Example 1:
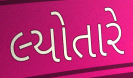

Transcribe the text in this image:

લ્યોતારે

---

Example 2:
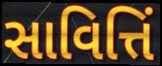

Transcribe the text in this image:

સાવિત્તિં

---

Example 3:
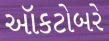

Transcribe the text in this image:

ઑકટોબરે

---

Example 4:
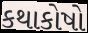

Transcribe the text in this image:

કથાકોષો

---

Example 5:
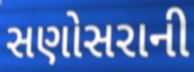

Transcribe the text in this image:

સણોસરાની